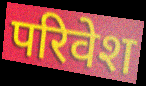
परिवेश